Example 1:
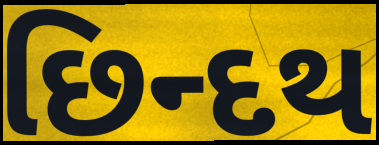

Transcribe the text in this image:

છિન્દથ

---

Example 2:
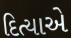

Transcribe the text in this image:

દિત્યાએ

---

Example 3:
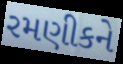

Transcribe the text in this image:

રમણીકને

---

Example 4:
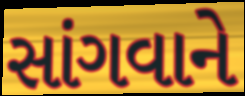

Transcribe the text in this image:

સાંગવાને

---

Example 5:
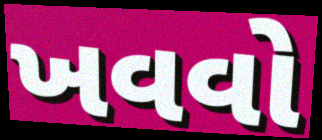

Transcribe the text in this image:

ખવવો